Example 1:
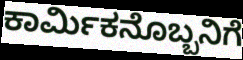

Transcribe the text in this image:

ಕಾರ್ಮಿಕನೊಬ್ಬನಿಗೆ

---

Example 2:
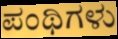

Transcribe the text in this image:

ಪಂಥಿಗಳು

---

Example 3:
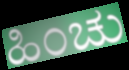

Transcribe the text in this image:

ಹಿಂಚು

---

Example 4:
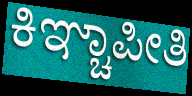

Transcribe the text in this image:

ಕಿಞ್ಚಾಪೀತಿ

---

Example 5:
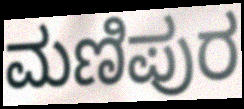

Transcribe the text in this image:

ಮಣಿಪುರ